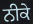
ਨੀਕੇ